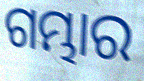
ଗମ୍ଭାର